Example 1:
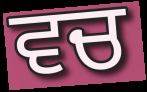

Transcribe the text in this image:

ਵਚ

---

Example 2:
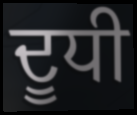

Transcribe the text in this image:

ਦੂਧੀ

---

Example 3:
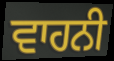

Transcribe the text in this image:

ਵਾਹਨੀ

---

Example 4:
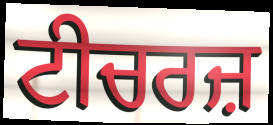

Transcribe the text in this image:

ਟੀਚਰਜ਼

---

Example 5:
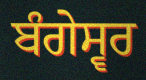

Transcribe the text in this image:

ਬੰਗੇਸ੍ਵਰ